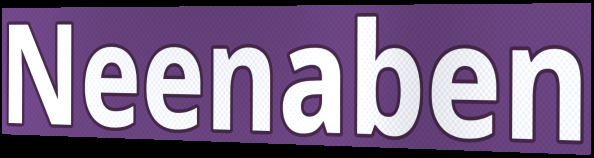
Neenaben